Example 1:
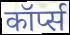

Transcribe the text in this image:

कॉर्प्स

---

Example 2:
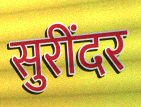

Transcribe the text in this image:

सुरींदर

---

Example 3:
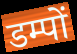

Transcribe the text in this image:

डम्पों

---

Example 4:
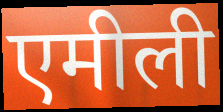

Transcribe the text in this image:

एमीली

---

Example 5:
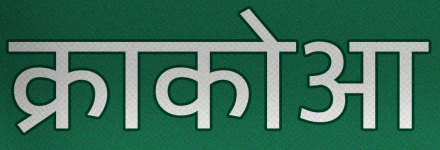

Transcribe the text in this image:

क्राकोआ